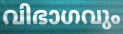
വിഭാഗവും